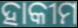
ହାକୀମ